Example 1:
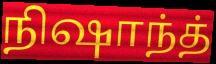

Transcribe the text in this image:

நிஷாந்த்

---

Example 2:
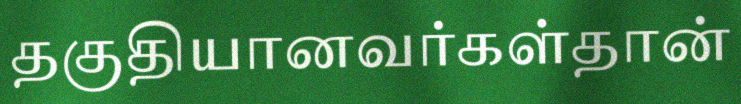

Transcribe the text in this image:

தகுதியானவர்கள்தான்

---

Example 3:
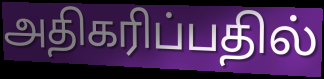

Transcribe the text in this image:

அதிகரிப்பதில்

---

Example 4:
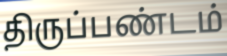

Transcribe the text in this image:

திருப்பண்டம்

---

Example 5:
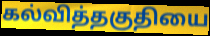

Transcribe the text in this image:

கல்வித்தகுதியை